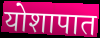
योशापात